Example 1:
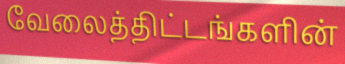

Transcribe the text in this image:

வேலைத்திட்டங்களின்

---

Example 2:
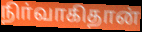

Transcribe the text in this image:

நிர்வாகிதான்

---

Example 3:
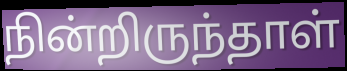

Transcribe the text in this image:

நின்றிருந்தாள்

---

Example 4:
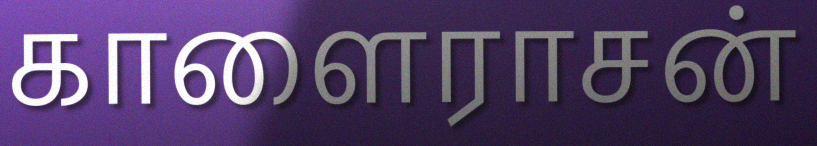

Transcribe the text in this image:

காளைராசன்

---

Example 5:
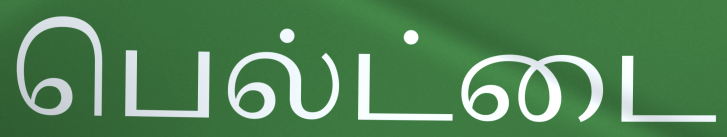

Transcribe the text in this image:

பெல்ட்டை